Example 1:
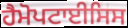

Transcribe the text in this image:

ਹੈਮੋਪਟਾਈਸਿਸ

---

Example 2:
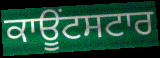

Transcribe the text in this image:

ਕਾਊਂਟਸਟਾਰ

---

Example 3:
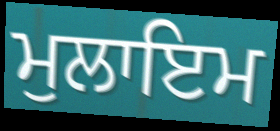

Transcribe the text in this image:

ਮੁਲਾਇਮ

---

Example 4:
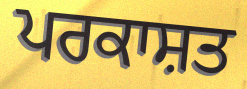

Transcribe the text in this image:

ਪਰਕਾਸ਼ਤ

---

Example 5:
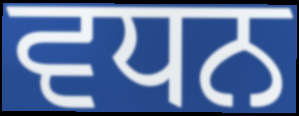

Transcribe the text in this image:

ਵਧਨ